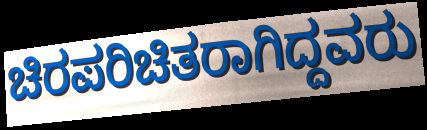
ಚಿರಪರಿಚಿತರಾಗಿದ್ದವರು